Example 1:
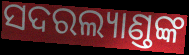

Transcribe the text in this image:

ସଦରଲ୍ୟାଣ୍ଡଙ୍କ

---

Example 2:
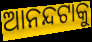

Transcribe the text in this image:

ଆନନ୍ଦଟାକୁ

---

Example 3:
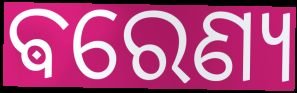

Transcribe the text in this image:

ଵରେଣ୍ୟ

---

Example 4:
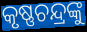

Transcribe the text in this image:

କୃଷ୍ଣଚନ୍ଦ୍ରଙ୍କୁ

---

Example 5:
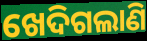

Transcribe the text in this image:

ଖେଦିଗଲାଣି